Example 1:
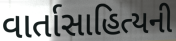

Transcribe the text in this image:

વાર્તાસાહિત્યની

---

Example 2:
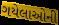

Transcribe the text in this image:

ગયેલાઓની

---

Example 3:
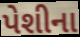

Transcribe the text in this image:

પેશીના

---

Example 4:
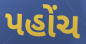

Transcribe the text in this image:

પહોંચ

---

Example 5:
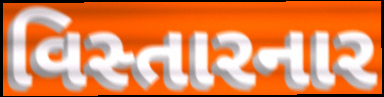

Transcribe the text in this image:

વિસ્તારનાર